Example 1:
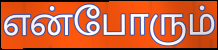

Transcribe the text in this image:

என்போரும்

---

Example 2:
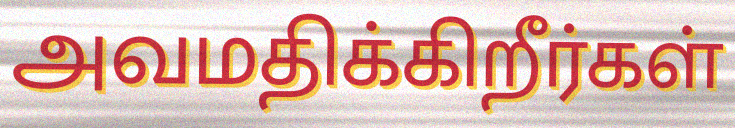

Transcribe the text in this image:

அவமதிக்கிறீர்கள்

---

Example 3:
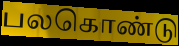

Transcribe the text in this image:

பலகொண்டு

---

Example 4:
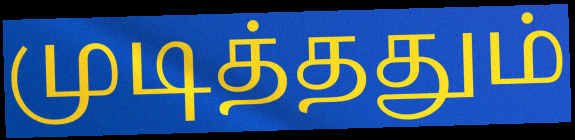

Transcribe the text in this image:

முடித்ததும்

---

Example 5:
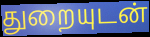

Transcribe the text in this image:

துறையுடன்